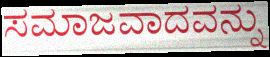
ಸಮಾಜವಾದವನ್ನು